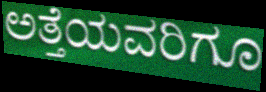
ಅತ್ತೆಯವರಿಗೂ